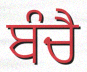
ਬੰਚੈ